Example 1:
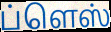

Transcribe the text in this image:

ப்ளெஸ்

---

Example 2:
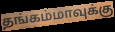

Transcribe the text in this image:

தங்கம்மாவுக்கு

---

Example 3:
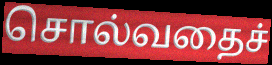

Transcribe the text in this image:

சொல்வதைச்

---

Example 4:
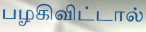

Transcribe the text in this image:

பழகிவிட்டால்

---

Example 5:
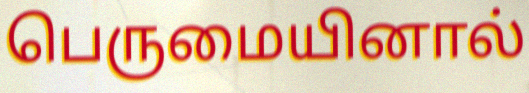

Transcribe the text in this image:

பெருமையினால்